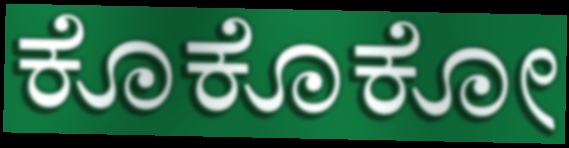
ಕೊಕೊಕೋ